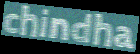
chindha